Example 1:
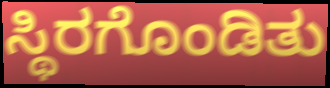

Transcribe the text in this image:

ಸ್ಥಿರಗೊಂಡಿತು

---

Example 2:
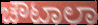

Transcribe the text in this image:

ಚೌಟಾಲಾ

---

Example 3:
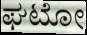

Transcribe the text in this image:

ಘಟೋ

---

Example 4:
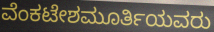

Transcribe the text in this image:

ವೆಂಕಟೇಶಮೂರ್ತಿಯವರು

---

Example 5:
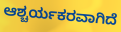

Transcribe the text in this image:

ಆಶ್ಚರ್ಯಕರವಾಗಿದೆ